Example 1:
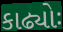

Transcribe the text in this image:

કાઢ્યોઃ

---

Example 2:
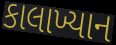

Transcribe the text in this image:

કાલાખ્યાન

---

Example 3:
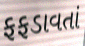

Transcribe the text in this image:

ફફડાવતાં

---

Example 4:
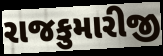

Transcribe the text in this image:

રાજકુમારીજી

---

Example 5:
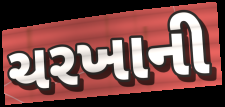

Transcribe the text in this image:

ચરખાની